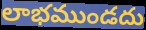
లాభముండదు